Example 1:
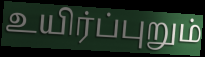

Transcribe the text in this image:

உயிர்ப்புறும்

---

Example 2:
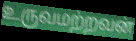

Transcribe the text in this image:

உருவமற்றவன்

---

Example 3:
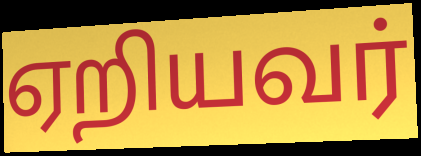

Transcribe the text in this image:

ஏறியவர்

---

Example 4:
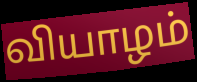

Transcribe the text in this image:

வியாழம்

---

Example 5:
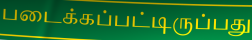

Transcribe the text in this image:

படைக்கப்பட்டிருப்பது